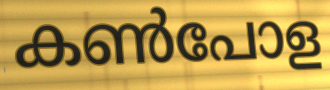
കൺപോള